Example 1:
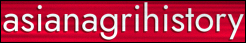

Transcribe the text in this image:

asianagrihistory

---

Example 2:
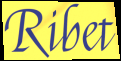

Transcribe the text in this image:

Ribet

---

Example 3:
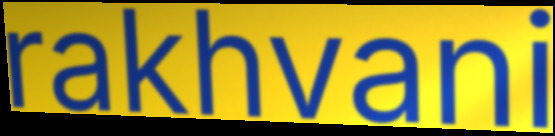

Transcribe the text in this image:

rakhvani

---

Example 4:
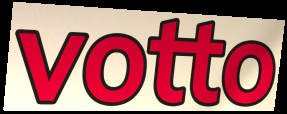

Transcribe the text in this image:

votto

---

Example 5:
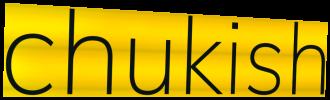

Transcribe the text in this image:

chukish